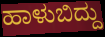
ಹಾಳುಬಿದ್ದು